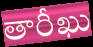
తారీఖు